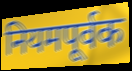
नियमपूर्वक